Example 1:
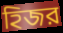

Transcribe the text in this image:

হিজর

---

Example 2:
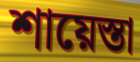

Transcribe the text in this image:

শায়েস্তা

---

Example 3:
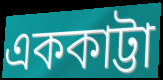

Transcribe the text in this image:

এককাট্টা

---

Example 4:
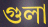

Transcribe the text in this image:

গুলা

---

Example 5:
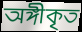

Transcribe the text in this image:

অঙ্গীকৃত